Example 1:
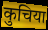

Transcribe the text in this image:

कुचिया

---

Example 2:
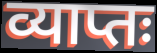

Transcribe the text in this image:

व्याप्तः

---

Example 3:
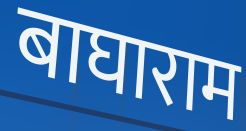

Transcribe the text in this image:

बाघाराम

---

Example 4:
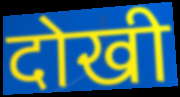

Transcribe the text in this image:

दोखी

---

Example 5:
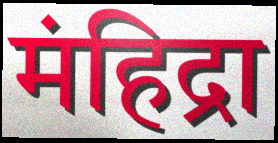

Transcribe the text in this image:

मंहिद्रा